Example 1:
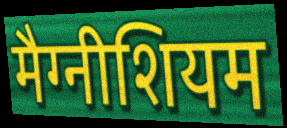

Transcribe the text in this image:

मैग्नीशियम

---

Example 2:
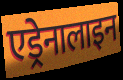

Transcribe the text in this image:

एड्रेनालाइन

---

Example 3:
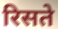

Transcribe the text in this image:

रिसते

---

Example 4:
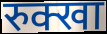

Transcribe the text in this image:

रुक्खा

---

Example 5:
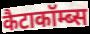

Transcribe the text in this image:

कैटाकॉम्ब्स